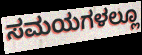
ಸಮಯಗಳಲ್ಲೂ